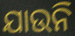
ଯାଉନି